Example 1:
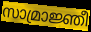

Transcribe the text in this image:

സാമ്രാജ്ഞീ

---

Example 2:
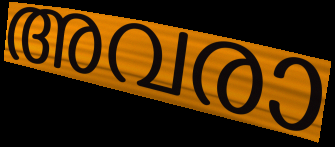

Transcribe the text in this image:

അവരാ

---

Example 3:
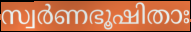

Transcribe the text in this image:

സ്വർണഭൂഷിതാഃ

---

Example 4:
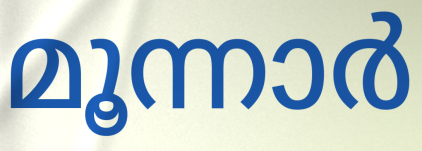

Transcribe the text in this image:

മൂന്നാർ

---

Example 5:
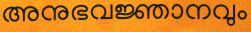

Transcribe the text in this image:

അനുഭവജ്ഞാനവും